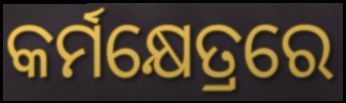
କର୍ମକ୍ଷେତ୍ରରେ